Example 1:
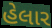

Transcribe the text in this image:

હેલાર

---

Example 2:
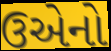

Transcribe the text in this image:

ઉએનો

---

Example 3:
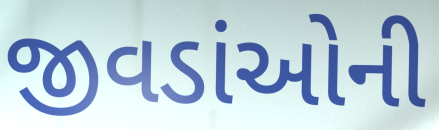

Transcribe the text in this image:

જીવડાંઓની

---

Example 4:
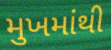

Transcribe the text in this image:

મુખમાંથી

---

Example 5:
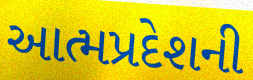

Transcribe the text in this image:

આત્મપ્રદેશની